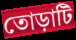
তোড়াটি